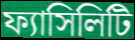
ফ্যাসিলিটি